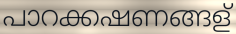
പാറക്കഷണങ്ങള്